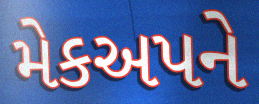
મેકઅપને